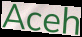
Aceh